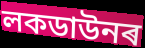
লকডাউনৰ